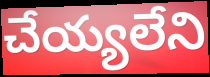
చేయ్యలేని